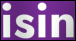
isin